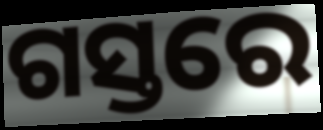
ଗସ୍ତରେ